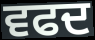
ਵਫਦ